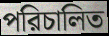
পরিচালিত